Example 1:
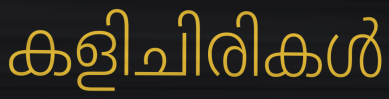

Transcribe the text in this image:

കളിചിരികൾ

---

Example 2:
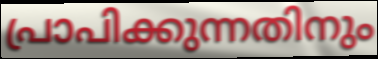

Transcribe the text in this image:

പ്രാപിക്കുന്നതിനും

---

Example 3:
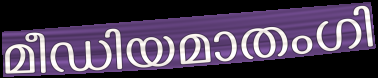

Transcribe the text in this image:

മീഡിയമാതംഗി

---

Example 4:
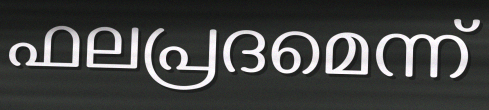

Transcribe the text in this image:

ഫലപ്രദമെന്ന്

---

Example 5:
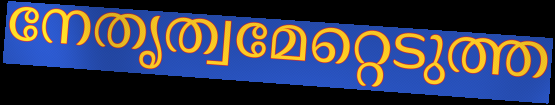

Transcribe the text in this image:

നേതൃത്വമേറ്റെടുത്ത